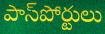
పాస్‌పోర్టులు